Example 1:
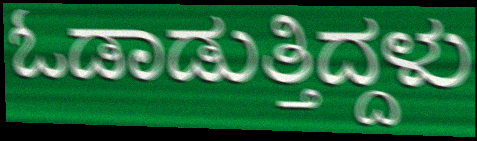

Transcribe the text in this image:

ಓಡಾಡುತ್ತಿದ್ದಳು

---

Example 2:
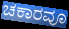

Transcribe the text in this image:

ಚಕಾರವೂ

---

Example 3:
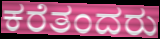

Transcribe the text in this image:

ಕರೆತಂದರು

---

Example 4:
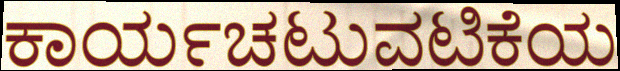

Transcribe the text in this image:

ಕಾರ್ಯಚಟುವಟಿಕೆಯ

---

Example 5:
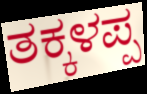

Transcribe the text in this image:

ತಕ್ಕಳಪ್ಪ